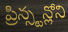
ప్రిన్స్టన్లోని